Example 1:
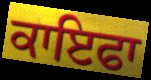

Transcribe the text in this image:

ਕਾਇਫਾ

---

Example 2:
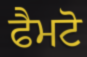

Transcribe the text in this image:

ਫੈਮਟੋ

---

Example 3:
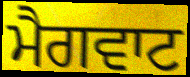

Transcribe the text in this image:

ਮੈਗਵਾਟ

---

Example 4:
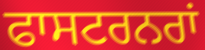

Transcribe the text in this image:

ਫਾਸਟਰਨਰਾਂ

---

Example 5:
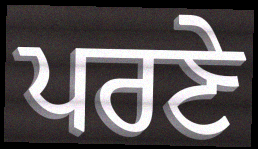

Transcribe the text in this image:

ਪਰਣੇ